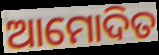
ଆମୋଦିତ